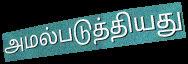
அமல்படுத்தியது